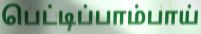
பெட்டிப்பாம்பாய்